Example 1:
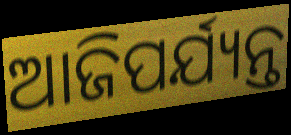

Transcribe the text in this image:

ଆଜିପର୍ଯ୍ୟନ୍ତ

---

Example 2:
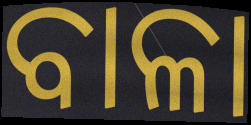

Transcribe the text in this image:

ବାଳା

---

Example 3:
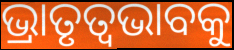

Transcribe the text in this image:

ଭ୍ରାତୃତ୍ୱଭାବକୁ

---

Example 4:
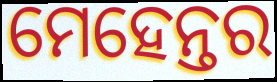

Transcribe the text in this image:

ମେହେନ୍ତର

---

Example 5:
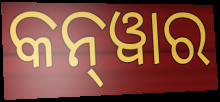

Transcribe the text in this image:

କନ୍‍ୱାର